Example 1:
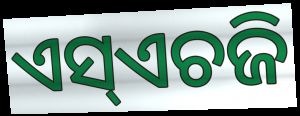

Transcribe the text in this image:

ଏସ୍ଏଚଜି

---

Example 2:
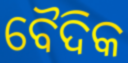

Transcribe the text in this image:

ବୈଦିକ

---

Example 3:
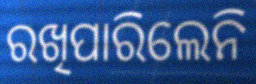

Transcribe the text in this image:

ରଖିପାରିଲେନି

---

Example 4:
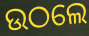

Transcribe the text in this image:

ଉଠଲେ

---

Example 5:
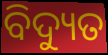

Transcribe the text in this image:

ବିଦ୍ୟୁତ